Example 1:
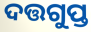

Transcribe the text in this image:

ଦତ୍ତଗୁପ୍ତ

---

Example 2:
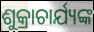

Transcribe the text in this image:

ଶୁକ୍ରାଚାର୍ଯ୍ୟଙ୍କ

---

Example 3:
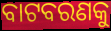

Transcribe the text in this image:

ବାଟବରଣକୁ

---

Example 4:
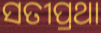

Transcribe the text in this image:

ସତୀପ୍ରଥା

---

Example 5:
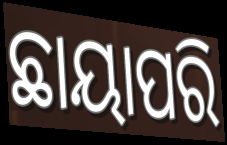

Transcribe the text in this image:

ଛାୟାପରି